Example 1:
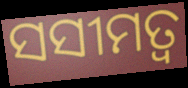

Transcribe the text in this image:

ସସୀମତ୍ୱ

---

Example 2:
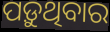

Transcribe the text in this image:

ପଡ଼ୁଥିବାର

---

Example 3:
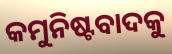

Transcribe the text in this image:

କମୁନିଷ୍ଟବାଦକୁ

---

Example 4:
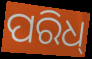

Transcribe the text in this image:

ପରିଧ୍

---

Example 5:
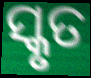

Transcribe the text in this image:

ସ୍କୃତ